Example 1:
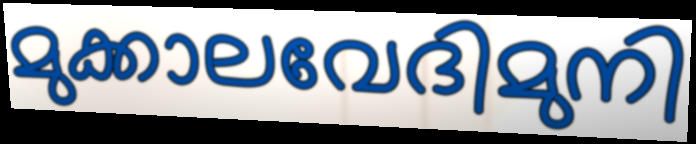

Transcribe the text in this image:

മുക്കാലവേദിമുനി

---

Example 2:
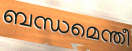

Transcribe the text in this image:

ബന്ധമെന്തീ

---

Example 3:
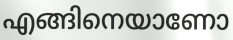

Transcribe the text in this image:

എങ്ങിനെയാണോ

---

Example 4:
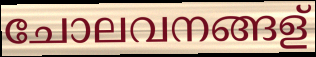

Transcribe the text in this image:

ചോലവനങ്ങള്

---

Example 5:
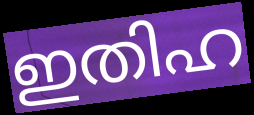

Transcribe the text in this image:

ഇതിഹ